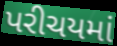
પરીચયમાં